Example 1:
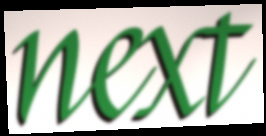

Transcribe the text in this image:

next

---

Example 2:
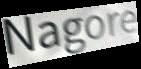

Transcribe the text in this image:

Nagore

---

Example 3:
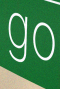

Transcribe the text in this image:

go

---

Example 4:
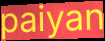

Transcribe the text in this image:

paiyan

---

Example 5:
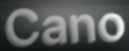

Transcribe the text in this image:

Cano